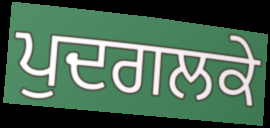
ਪੁਦਗਲਕੇ